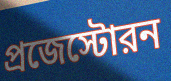
প্রজেস্টোরন